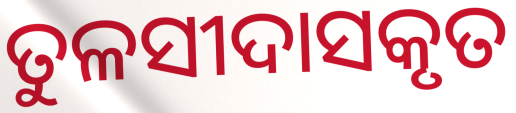
ତୁଳସୀଦାସକୃତ